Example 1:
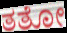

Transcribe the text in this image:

ತತೋ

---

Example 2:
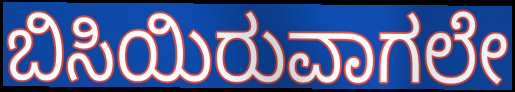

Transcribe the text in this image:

ಬಿಸಿಯಿರುವಾಗಲೇ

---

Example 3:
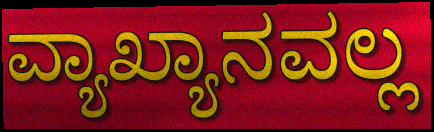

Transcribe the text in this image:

ವ್ಯಾಖ್ಯಾನವಲ್ಲ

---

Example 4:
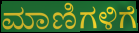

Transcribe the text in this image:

ಮಾಣಿಗಳಿಗೆ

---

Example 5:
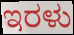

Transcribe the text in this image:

ಇರಳು